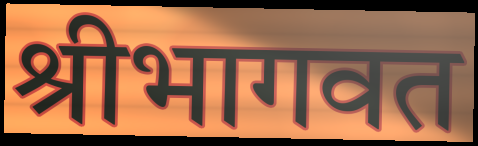
श्रीभागवत